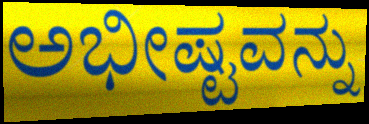
ಅಭೀಷ್ಟವನ್ನು